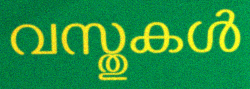
വസ്തുകൾ